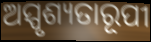
ଅସ୍ପୃଶ୍ୟତାରୂପୀ